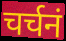
चर्चनं